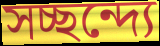
সচ্ছন্দ্যে